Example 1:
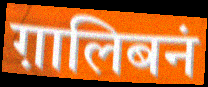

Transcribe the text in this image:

ग़ालिबनं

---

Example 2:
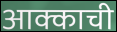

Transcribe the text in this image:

आक्काची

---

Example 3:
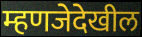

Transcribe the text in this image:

म्हणजेदेखील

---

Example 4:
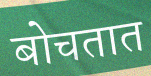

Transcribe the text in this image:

बोचतात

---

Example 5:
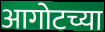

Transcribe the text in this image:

आगोटच्या